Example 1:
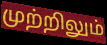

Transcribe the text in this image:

முற்றிலும்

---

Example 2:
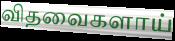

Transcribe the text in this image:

விதவைகளாய்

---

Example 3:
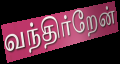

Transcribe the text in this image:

வந்திர்றேன்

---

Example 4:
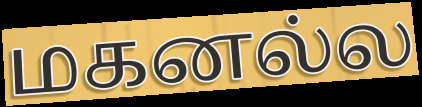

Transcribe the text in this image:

மகனல்ல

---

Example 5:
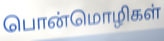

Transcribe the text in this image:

பொன்மொழிகள்